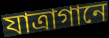
যাত্রাগানে